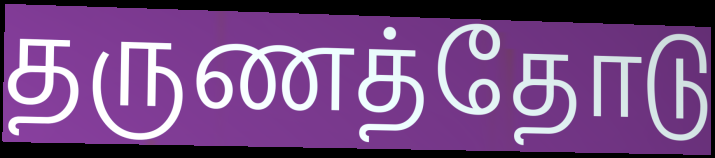
தருணத்தோடு